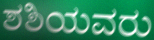
ಶಶಿಯವರು